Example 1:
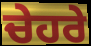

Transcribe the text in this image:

ਚੇਹਰੇ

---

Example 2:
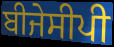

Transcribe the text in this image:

ਬੀਜੇਸੀਪੀ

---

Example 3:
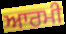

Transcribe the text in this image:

ਆਰਮੀ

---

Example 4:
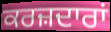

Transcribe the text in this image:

ਕਰਜ਼ਦਾਰਾਂ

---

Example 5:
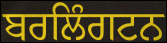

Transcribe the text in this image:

ਬਰਲਿੰਗਟਨ